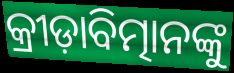
କ୍ରୀଡ଼ାବିତ୍ମାନଙ୍କୁ